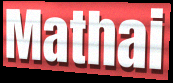
Mathai